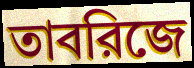
তাবরিজে